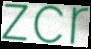
zcr